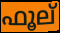
ഫൂല്